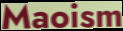
Maoism